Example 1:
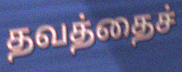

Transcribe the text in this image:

தவத்தைச்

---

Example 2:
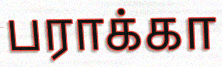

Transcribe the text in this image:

பராக்கா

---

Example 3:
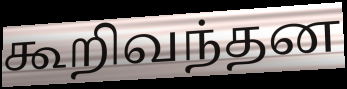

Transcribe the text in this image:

கூறிவந்தன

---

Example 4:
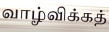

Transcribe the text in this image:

வாழ்விக்கத்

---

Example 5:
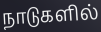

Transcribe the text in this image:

நாடுகளில்